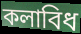
কলাবিধ